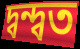
দ্বন্দ্বত